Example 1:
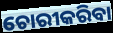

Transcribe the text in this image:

ଚୋରୀକରିବା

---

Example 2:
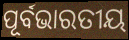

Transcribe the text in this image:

ପୂର୍ବଭାରତୀୟ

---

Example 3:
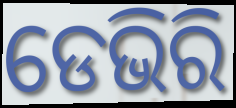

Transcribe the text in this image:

ଡେଭିରି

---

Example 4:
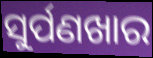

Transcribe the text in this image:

ସୁର୍ପଣଖାର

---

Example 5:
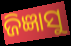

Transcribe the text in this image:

ଜିଜ୍ଞାସୁ